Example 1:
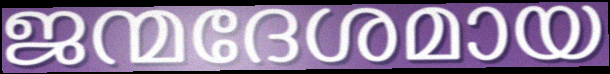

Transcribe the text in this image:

ജന്മദേശമായ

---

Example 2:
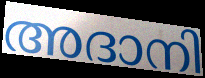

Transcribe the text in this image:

അദാനി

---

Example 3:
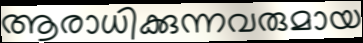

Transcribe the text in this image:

ആരാധിക്കുന്നവരുമായ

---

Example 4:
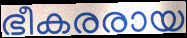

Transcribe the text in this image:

ഭീകരരായ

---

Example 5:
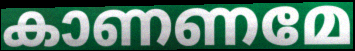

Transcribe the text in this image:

കാണണമേ